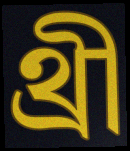
থ্রী